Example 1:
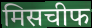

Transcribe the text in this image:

मिसचीफ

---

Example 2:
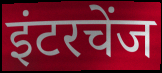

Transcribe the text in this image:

इंटरचेंज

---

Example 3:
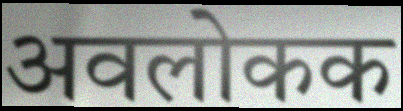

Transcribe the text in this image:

अवलोकक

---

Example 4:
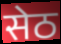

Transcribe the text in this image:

सेठ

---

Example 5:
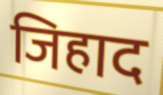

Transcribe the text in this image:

जिहाद